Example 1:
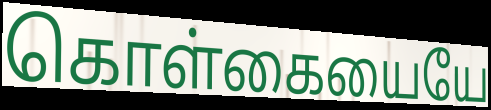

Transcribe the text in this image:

கொள்கையையே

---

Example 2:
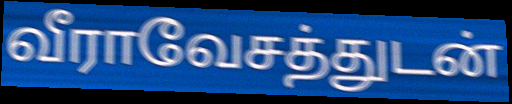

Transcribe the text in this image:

வீராவேசத்துடன்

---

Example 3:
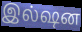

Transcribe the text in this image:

இல்ஷன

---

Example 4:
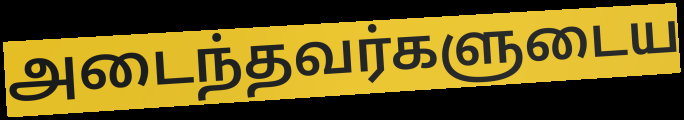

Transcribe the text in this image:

அடைந்தவர்களுடைய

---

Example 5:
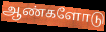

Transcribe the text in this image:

ஆண்களோடு